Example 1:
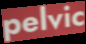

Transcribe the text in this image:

pelvic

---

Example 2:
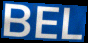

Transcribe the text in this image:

BEL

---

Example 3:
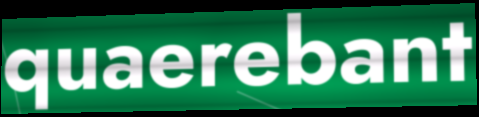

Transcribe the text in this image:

quaerebant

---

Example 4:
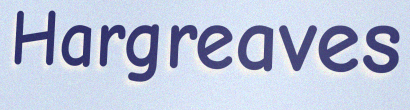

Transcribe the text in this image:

Hargreaves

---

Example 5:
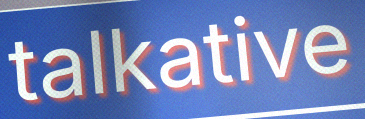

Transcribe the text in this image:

talkative